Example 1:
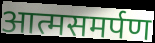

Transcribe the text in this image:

आत्‍मसमर्पण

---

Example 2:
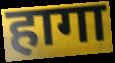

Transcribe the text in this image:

हागा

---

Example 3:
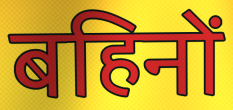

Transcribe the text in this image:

बहिनों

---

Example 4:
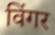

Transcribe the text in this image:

विंगर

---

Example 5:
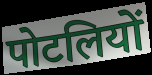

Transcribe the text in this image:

पोटलियों